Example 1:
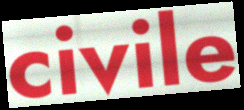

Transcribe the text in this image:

civile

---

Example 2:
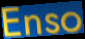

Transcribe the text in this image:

Enso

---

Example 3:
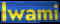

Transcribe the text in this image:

lwami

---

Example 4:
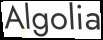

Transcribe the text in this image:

Algolia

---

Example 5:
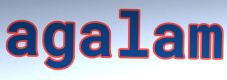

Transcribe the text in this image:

agalam